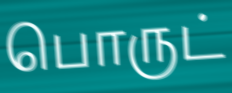
பொருட்